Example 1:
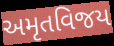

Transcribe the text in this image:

અમૃતવિજય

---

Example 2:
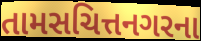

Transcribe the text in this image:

તામસચિત્તનગરના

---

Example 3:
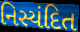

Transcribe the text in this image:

નિસ્યંદિત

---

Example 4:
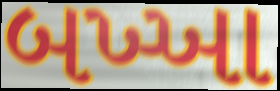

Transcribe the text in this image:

બખ્ખા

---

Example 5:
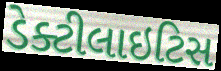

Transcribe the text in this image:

ડેક્ટીલાઇટિસ